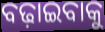
ବଢ଼ାଇବାକୁ